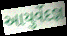
આયુર્વેદજ્ઞ